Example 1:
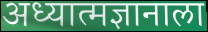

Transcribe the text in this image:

अध्यात्मज्ञानाला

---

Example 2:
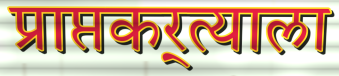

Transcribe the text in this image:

प्राप्तकर्त्याला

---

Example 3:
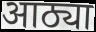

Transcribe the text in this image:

आठ्या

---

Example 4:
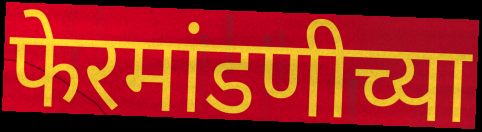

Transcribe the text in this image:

फेरमांडणीच्या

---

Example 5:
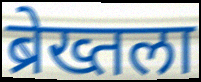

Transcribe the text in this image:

ब्रेख्तला